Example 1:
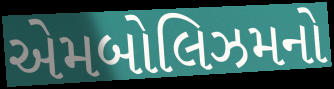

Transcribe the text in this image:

એમબોલિઝમનો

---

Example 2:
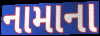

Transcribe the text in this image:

નામાના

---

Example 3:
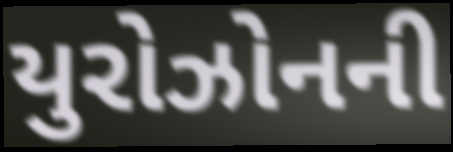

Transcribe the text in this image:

યુરોઝોનની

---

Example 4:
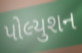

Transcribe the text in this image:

પોલ્યુશન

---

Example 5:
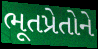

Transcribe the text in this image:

ભૂતપ્રેતોને